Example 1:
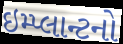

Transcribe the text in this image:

ઇમ્પ્લાન્ટનો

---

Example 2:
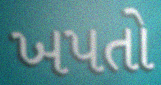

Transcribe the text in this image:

ખપતો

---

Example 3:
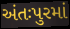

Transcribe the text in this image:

અંતઃપુરમાં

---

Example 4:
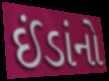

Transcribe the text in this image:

ઈંડાંનો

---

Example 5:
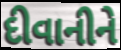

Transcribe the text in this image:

દીવાનીને